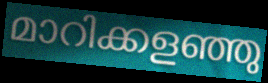
മാറിക്കളഞ്ഞു